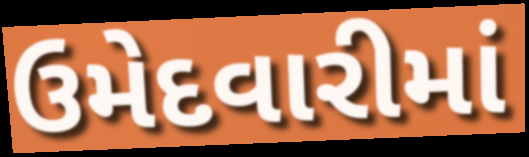
ઉમેદવારીમાં